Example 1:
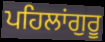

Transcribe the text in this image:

ਪਹਿਲਾਂਗੁਰੂ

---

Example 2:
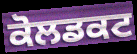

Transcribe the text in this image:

ਕੋਲਡਕਟ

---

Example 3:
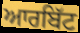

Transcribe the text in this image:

ਆਰਬਿੱਟ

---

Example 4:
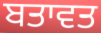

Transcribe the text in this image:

ਬਤਾਵਤ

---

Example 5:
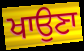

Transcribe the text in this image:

ਖਾਉਣਾ